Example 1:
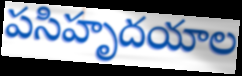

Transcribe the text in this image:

పసిహృదయాల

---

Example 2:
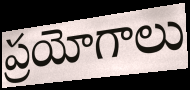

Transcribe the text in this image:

ప్రయోగాలు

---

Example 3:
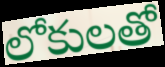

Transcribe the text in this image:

లోకులతో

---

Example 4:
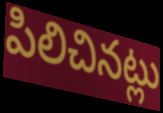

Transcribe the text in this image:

పిలిచినట్లు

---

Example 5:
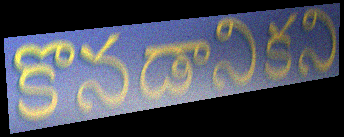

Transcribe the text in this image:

కొనడానికని